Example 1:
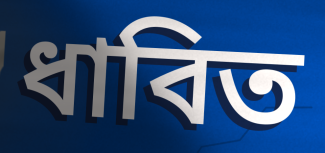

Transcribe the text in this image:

ধাবিত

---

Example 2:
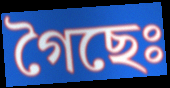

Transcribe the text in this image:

গৈছেঃ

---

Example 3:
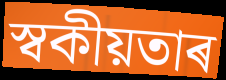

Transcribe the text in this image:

স্বকীয়তাৰ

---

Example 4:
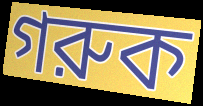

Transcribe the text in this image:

গৰুক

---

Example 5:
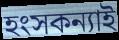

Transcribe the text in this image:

হংসকন্যাই